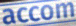
accom